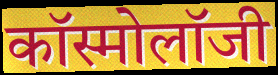
कॉस्मोलॉजी